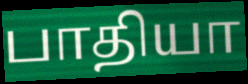
பாதியா